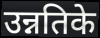
उन्नतिके